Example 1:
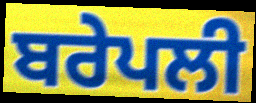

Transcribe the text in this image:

ਬਰੇਪਲੀ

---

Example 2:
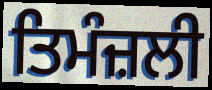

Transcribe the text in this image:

ਤਿਮੰਜ਼ਲੀ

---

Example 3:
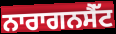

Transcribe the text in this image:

ਨਾਰਾਗਨਸੈੱਟ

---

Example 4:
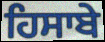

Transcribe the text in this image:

ਹਿਸਾਬੇ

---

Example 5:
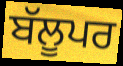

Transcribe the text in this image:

ਬੱਲੂਪਰ